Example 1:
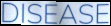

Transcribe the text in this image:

DISEASE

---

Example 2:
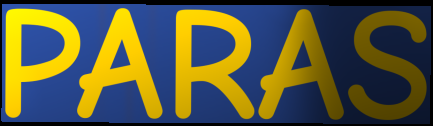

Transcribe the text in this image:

PARAS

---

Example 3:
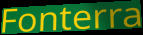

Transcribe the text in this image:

Fonterra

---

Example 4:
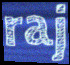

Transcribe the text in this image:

raj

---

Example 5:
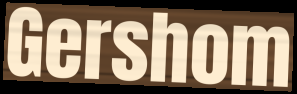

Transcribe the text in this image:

Gershom